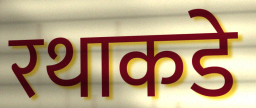
रथाकडे